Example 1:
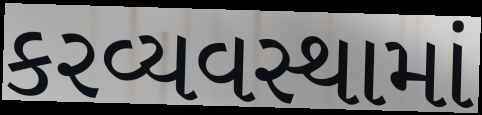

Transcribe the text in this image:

કરવ્યવસ્થામાં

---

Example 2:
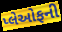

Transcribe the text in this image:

પ્લેઓફની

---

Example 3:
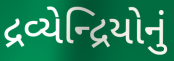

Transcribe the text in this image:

દ્રવ્યેન્દ્રિયોનું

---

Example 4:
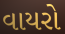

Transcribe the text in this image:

વાયરો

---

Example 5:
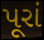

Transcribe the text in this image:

પૂરાં